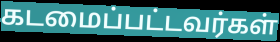
கடமைப்பட்டவர்கள்